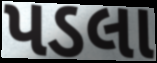
પડલા